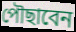
পৌছাবেন